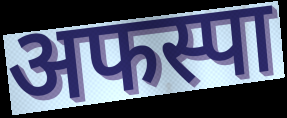
अफस्पा